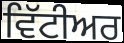
ਵਿੱਟੀਅਰ